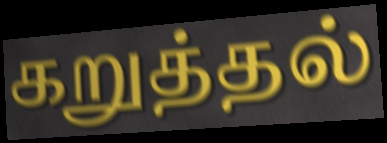
கறுத்தல்